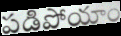
పడిపోయాం